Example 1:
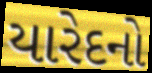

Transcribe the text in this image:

યારેદનો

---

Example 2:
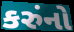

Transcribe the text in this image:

કરુંનો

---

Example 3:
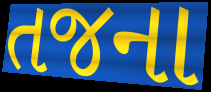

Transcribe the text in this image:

તજના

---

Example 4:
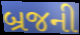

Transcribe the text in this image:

બ્રજની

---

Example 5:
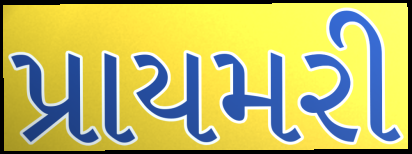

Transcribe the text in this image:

પ્રાયમરી